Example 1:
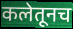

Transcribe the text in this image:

कलेतूनच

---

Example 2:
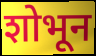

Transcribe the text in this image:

शोभून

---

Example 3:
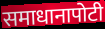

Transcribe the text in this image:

समाधानापोटी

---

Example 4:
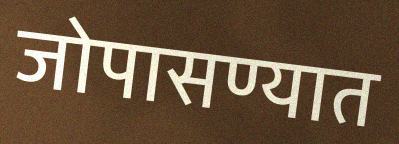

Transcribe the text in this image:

जोपासण्यात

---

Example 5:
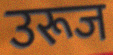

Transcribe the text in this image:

उरूज